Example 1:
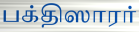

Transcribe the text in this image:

பக்திஸாரர்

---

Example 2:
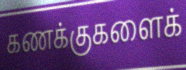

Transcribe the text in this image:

கணக்குகளைக்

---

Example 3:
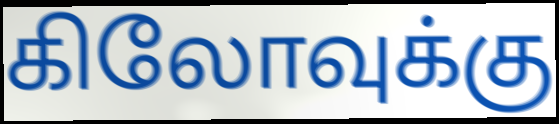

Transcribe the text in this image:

கிலோவுக்கு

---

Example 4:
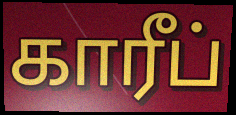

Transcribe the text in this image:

காரீப்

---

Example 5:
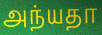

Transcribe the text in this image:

அந்யதா